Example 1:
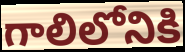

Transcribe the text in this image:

గాలిలోనికి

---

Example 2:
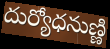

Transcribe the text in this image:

దుర్యోధనుణ్ణి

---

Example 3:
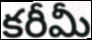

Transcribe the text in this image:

కరీమీ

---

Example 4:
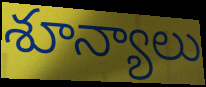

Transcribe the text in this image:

శూన్యాలు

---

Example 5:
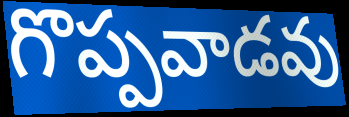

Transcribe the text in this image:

గొప్పవాడవు